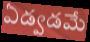
ఏడ్వడమే